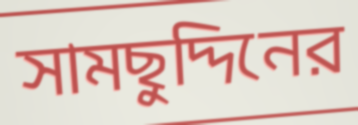
সামছুদ্দিনের